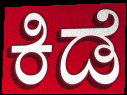
ಕಿಡೆ